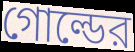
গোল্ডের